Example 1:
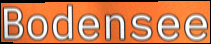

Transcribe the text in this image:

Bodensee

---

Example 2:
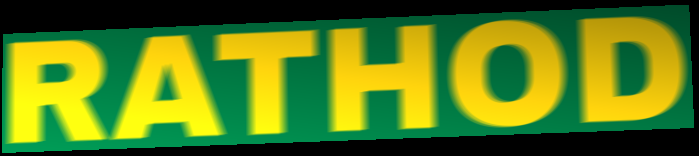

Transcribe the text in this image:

RATHOD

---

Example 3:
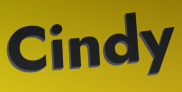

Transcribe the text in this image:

Cindy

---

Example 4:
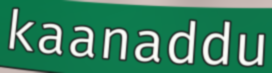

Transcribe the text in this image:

kaanaddu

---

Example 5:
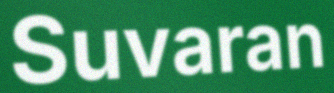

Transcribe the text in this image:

Suvaran